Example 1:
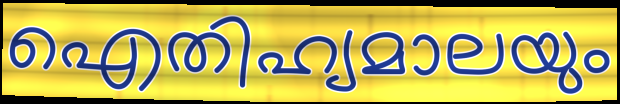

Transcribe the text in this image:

ഐതിഹ്യമാലയും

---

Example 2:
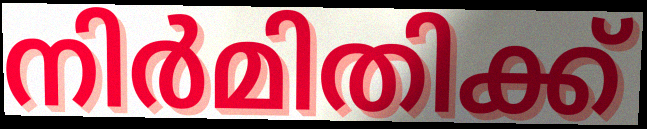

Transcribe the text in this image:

നിർമിതിക്ക്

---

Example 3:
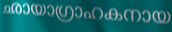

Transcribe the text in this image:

ഛായാഗ്രാഹകനായ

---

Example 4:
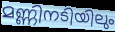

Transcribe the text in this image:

മണ്ണിനടിയിലും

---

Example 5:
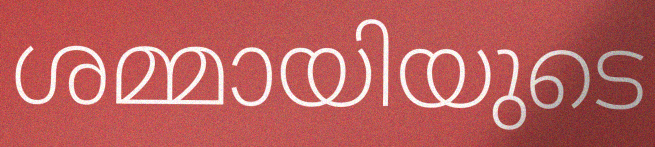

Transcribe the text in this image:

ശമ്മായിയുടെ